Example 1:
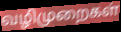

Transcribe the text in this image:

வழிமுறைகள்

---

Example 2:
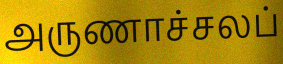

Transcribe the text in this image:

அருணாச்சலப்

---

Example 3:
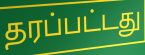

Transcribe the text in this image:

தரப்பட்டது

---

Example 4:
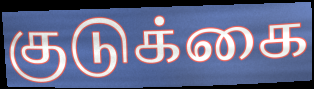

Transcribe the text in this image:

குடுக்கை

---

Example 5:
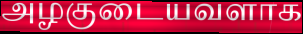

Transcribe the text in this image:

அழகுடையவளாக